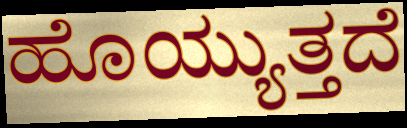
ಹೊಯ್ಯುತ್ತದೆ